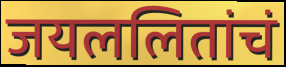
जयललितांचं